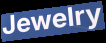
Jewelry